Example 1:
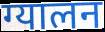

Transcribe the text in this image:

ग्यालन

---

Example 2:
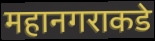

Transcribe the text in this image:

महानगराकडे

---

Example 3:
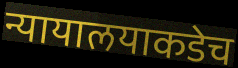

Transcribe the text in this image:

न्यायालयाकडेच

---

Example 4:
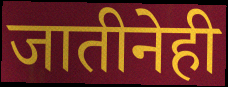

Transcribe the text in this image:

जातीनेही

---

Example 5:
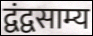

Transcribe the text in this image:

द्वंद्वसाम्य